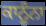
ਕਾਨੂੰਨਾ